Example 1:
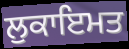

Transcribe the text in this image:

ਲੁਕਾਇਮਤ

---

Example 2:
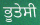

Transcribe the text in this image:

ਭੂਤੇਸੀ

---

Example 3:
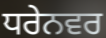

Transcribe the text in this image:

ਧਰੇਨਵਰ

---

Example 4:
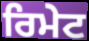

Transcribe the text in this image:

ਰਿਮੇਟ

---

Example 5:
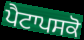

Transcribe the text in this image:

ਪੈਟਾਪਸਕੋ